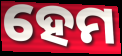
ହେମ